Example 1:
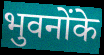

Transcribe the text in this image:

भुवनोंके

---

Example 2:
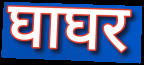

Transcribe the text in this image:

घाघर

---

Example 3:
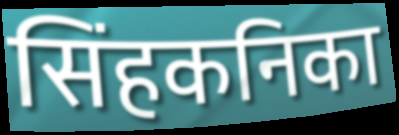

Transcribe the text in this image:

सिंहकनिका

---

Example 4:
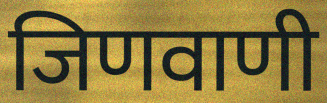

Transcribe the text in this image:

जिणवाणी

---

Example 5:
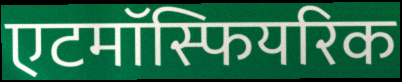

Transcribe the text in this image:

एटमॉस्फियरिक